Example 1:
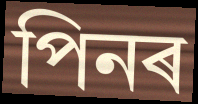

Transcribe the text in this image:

পিনৰ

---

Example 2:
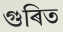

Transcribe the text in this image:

গুৰিত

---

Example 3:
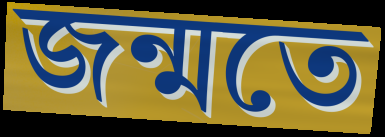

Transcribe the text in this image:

জন্মতে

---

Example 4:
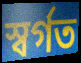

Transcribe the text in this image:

স্বৰ্গত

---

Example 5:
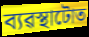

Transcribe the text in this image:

ব্যৱস্থাটোত